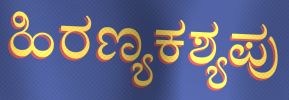
ಹಿರಣ್ಯಕಶ್ಯಪು